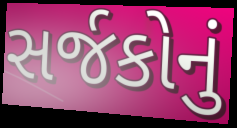
સર્જકોનું